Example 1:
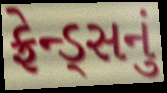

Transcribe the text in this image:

ફ્રેન્ડ્સનું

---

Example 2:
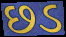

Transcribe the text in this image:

છડ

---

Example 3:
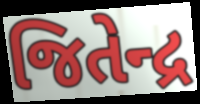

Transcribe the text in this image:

જિતેન્દ્ર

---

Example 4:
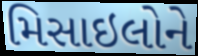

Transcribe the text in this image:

મિસાઇલોને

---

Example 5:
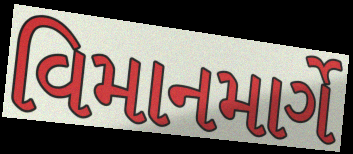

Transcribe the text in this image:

વિમાનમાર્ગે